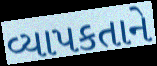
વ્યાપકતાને